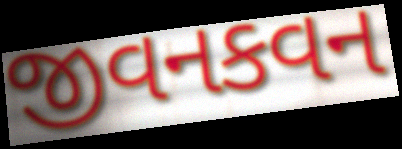
જીવનકવન